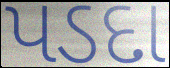
પડદા